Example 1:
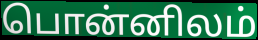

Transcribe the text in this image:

பொன்னிலம்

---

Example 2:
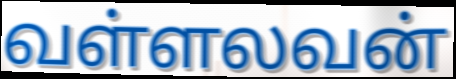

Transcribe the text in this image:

வள்ளலவன்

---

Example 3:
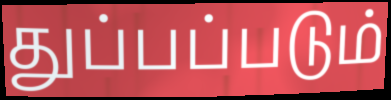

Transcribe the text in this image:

துப்பப்படும்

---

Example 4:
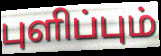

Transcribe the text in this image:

புளிப்பும்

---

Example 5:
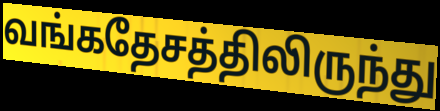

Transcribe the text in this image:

வங்கதேசத்திலிருந்து